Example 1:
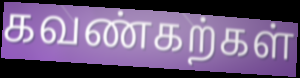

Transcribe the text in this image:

கவண்கற்கள்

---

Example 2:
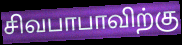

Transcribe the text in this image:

சிவபாபாவிற்கு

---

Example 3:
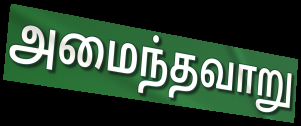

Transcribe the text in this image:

அமைந்தவாறு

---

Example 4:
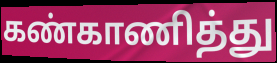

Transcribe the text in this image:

கண்காணித்து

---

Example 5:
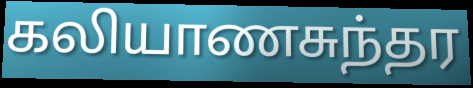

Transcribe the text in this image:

கலியாணசுந்தர